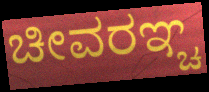
ಚೀವರಞ್ಚ